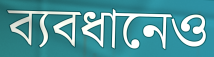
ব্যবধানেও